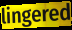
lingered